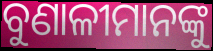
ବୁଣାଳୀମାନଙ୍କୁ